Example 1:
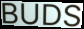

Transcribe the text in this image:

BUDS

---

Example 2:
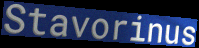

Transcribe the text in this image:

Stavorinus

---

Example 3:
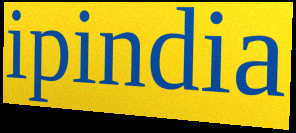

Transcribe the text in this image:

ipindia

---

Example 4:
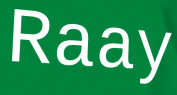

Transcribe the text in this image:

Raay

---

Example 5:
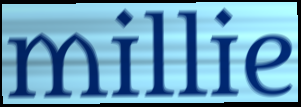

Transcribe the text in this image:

millie